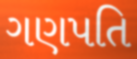
ગણપતિ